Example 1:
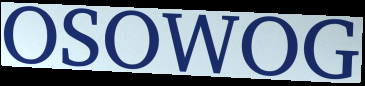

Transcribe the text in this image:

OSOWOG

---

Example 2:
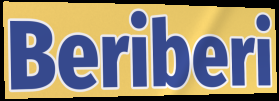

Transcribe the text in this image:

Beriberi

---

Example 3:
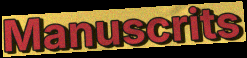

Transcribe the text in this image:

Manuscrits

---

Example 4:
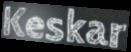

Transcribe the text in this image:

Keskar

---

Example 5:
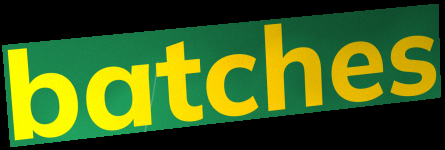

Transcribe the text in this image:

batches